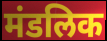
मंडलिक